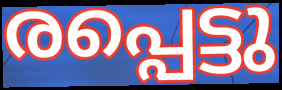
രപ്പെട്ടു